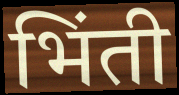
भिंती